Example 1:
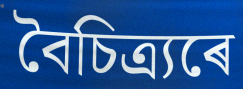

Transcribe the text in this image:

বৈচিত্ৰ্যৰে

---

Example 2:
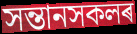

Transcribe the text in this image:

সন্তানসকলৰ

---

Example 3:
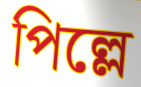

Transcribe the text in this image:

পিল্লে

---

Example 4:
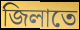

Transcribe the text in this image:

জিলাতে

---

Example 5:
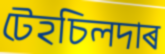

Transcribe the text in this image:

টেহচিলদাৰ